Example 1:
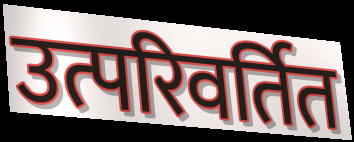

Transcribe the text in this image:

उत्परिवर्तित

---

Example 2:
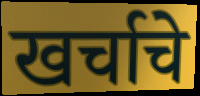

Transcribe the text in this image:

खर्चाचे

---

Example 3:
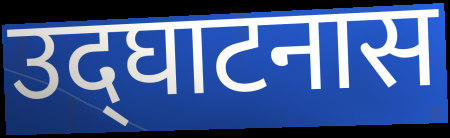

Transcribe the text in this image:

उद्घाटनास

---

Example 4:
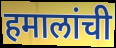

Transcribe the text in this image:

हमालांची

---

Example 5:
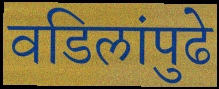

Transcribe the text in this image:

वडिलांपुढे